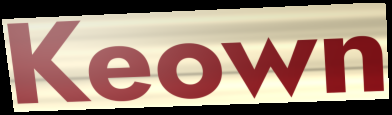
Keown